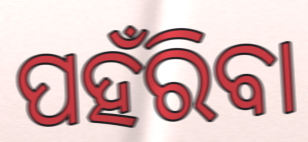
ପହଁରିବା